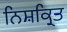
ਨਿਸ਼ਕ੍ਰਿਤ